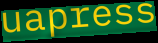
uapress